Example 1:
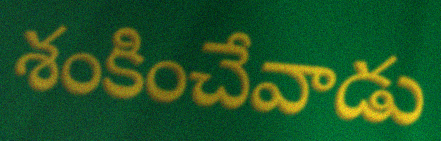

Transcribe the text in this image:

శంకించేవాడు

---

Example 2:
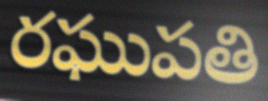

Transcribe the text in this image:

రఘుపతి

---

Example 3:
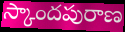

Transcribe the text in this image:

స్కాందపురాణ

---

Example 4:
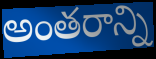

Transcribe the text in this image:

అంతరాన్ని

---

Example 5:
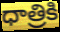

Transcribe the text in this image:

ధాత్రికి